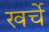
खर्चे